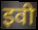
इवी